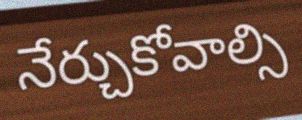
నేర్చుకోవాల్సి